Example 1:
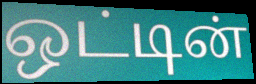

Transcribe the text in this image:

ஒட்டின்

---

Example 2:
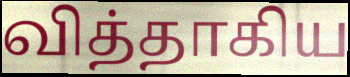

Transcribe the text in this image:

வித்தாகிய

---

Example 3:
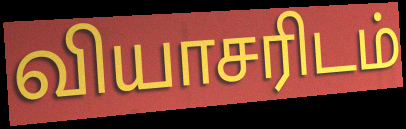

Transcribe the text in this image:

வியாசரிடம்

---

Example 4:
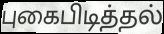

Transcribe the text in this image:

புகைபிடித்தல்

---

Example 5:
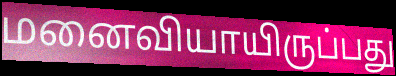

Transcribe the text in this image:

மனைவியாயிருப்பது